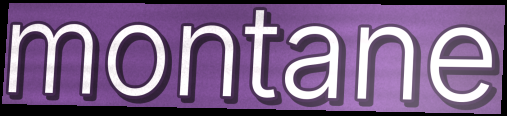
montane